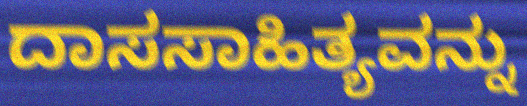
ದಾಸಸಾಹಿತ್ಯವನ್ನು